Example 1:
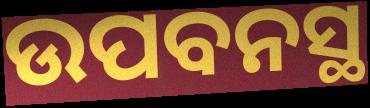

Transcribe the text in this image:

ଉପବନସ୍ଥ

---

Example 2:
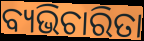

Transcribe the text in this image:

ବ୍ୟଭିଚାରିତା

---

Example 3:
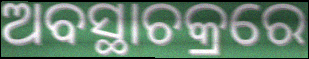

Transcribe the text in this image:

ଅବସ୍ଥାଚକ୍ରରେ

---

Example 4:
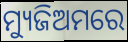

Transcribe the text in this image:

ମ୍ୟୁଜିଅମରେ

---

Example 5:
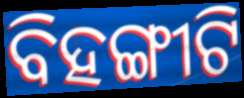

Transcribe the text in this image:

ବିହଙ୍ଗୀଟି